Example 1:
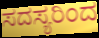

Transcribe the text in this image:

ಸದಸ್ಯರಿಂದ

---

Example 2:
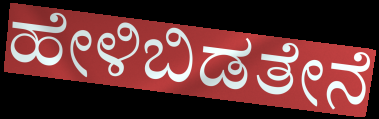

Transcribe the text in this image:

ಹೇಳಿಬಿಡತೇನೆ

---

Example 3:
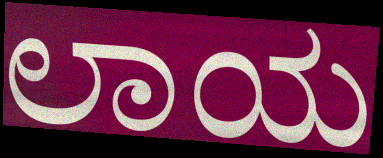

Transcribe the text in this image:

ಲಾಯ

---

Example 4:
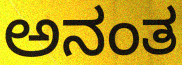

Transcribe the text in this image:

ಅನಂತ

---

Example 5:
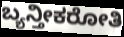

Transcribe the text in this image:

ಬ್ಯನ್ತೀಕರೋತಿ